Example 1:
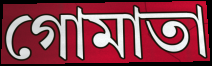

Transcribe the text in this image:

গোমাতা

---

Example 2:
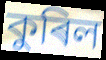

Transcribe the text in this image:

কুৰিল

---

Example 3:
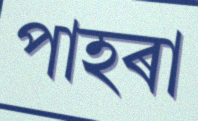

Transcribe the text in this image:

পাহৰা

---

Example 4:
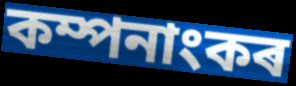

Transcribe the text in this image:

কম্পনাংকৰ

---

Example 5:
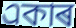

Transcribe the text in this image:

একাৰ